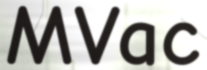
MVac